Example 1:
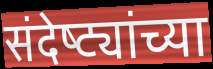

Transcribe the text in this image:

संदेष्ट्यांच्या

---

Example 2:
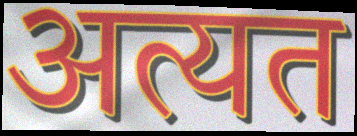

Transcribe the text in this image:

अत्यत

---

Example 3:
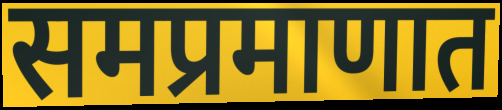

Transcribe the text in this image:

समप्रमाणात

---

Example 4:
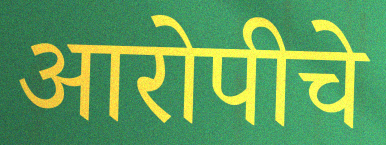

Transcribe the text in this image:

आरोपीचे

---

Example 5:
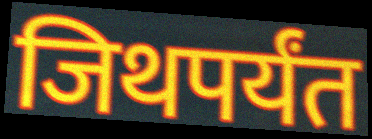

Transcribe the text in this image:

जिथपर्यंत